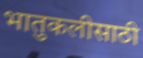
भातुकलीसाठी